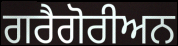
ਗਰੈਗੋਰੀਅਨ